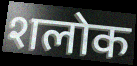
शलोक